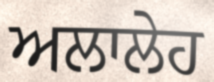
ਅਲਾਲੇਹ